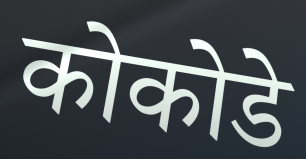
कोकोडे